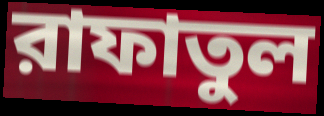
রাফাতুল